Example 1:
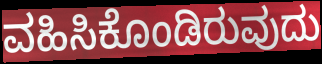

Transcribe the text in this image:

ವಹಿಸಿಕೊಂಡಿರುವುದು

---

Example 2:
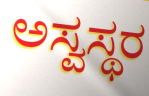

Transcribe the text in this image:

ಅಸ್ವಸ್ಥರ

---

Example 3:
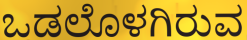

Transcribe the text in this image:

ಒಡಲೊಳಗಿರುವ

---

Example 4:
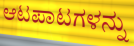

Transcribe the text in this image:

ಆಟಪಾಟಗಳನ್ನು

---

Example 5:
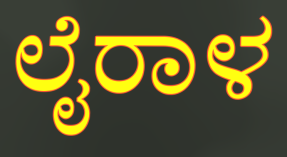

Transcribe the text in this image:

ಲೈರಾಳ